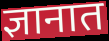
ज्ञानात